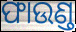
ଫାଉଣ୍ଡ